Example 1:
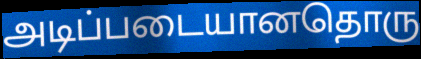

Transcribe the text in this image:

அடிப்படையானதொரு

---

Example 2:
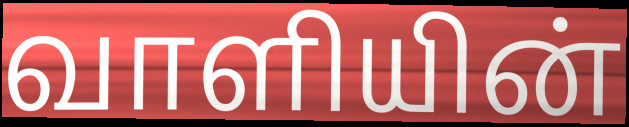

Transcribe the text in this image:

வாளியின்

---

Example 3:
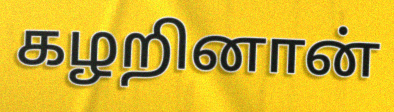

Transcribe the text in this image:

கழறினான்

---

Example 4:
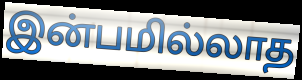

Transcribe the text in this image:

இன்பமில்லாத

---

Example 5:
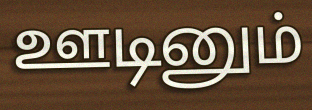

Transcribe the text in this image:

ஊடினும்